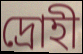
দ্রোহী